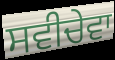
ਸਵੀਚੇਵਾ